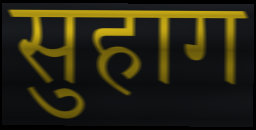
सुहाग